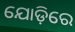
ଯୋଡ଼ିରେ